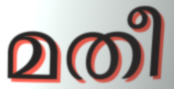
മതീ